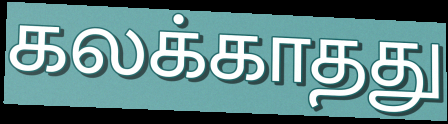
கலக்காதது